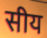
सीय